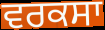
ਵਰਕਸਾ